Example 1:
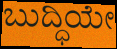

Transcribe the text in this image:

ಬುದ್ಧಿಯೇ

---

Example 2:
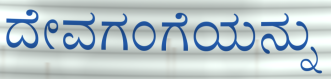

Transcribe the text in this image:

ದೇವಗಂಗೆಯನ್ನು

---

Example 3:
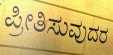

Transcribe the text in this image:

ಪ್ರೀತಿಸುವುದರ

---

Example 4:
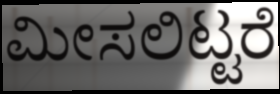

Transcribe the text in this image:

ಮೀಸಲಿಟ್ಟರೆ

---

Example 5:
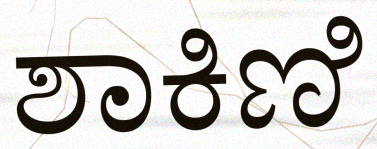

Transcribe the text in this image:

ಶಾಕಿಣಿ